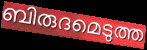
ബിരുദമെടുത്ത